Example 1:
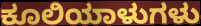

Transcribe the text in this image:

ಕೂಲಿಯಾಳುಗಳು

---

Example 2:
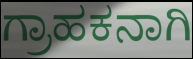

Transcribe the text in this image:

ಗ್ರಾಹಕನಾಗಿ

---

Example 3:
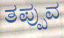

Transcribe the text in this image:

ತಪ್ಪುವ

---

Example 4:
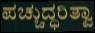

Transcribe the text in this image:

ಪಚ್ಚುದ್ಧರಿತ್ವಾ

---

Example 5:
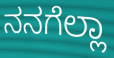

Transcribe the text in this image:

ನನಗೆಲ್ಲಾ